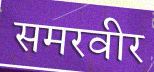
समरवीर